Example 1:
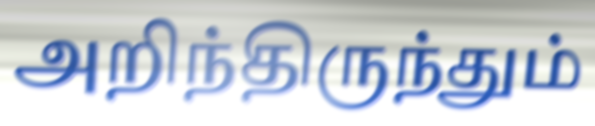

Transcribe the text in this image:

அறிந்திருந்தும்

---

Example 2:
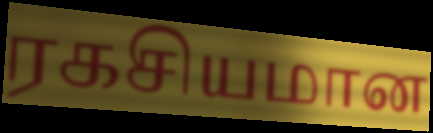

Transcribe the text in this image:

ரகசியமான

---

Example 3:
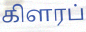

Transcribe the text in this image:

கிளரப்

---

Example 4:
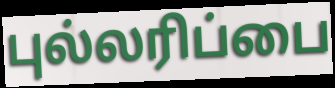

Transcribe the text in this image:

புல்லரிப்பை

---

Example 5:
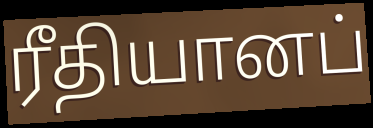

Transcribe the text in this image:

ரீதியானப்